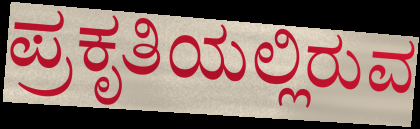
ಪ್ರಕೃತಿಯಲ್ಲಿರುವ